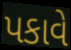
પકાવે